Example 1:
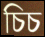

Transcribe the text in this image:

চিচ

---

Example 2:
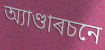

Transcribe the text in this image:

অ্যাণ্ডাৰচনে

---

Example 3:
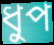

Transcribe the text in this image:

ধুপ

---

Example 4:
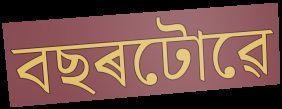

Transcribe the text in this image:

বছৰটোৱে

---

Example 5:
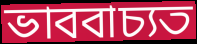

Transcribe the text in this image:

ভাববাচ্যত